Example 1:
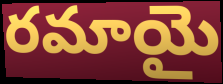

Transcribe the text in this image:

రమాయై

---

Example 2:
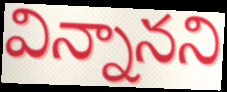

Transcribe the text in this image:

విన్నానని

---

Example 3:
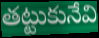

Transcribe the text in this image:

తట్టుకునేవి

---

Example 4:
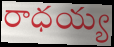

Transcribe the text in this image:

రాధయ్య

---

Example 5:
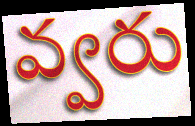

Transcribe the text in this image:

వ్వరు